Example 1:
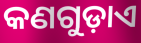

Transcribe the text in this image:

କଣଗୁଡ଼ାଏ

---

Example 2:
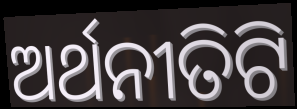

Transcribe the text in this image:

ଅର୍ଥନୀତିଟି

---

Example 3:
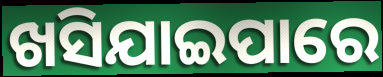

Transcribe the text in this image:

ଖସିଯାଇପାରେ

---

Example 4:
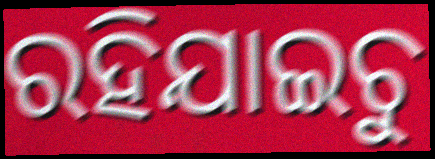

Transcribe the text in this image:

ରହିଯାଇଚୁ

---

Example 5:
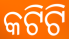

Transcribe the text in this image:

କଟିଟି